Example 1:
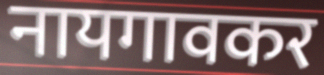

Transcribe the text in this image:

नायगावकर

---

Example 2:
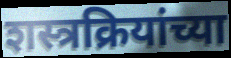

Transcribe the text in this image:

शस्त्रक्रियांच्या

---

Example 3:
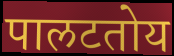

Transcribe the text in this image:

पालटतोय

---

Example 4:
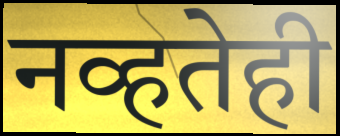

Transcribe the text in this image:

नव्हतेही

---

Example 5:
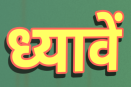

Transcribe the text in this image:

ध्यावें